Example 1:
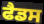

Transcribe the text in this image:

ਫੈਡਸ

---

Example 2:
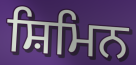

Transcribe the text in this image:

ਸ਼ਿਮਿਨ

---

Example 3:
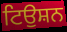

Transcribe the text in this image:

ਟਿਉਸ਼ਨ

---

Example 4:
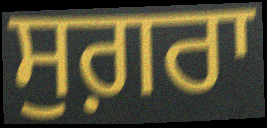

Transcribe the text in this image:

ਸੁਗ਼ਰਾ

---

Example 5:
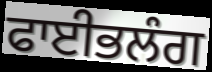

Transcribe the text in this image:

ਫਾਈਭਲੰਗ